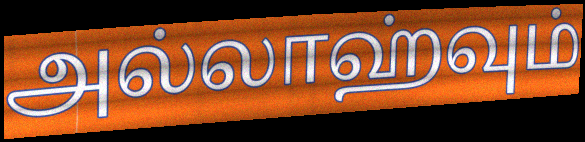
அல்லாஹ்வும்